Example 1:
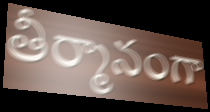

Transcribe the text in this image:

తీర్మానంగా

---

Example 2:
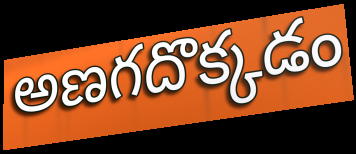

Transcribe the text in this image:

అణగదొక్కడం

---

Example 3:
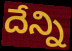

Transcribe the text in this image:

దేన్ని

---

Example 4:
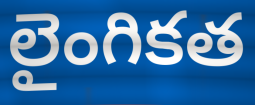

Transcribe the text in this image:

లైంగికత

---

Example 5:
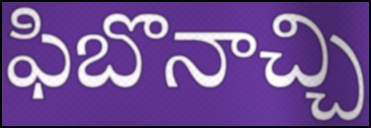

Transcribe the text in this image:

ఫిబొనాచ్చి